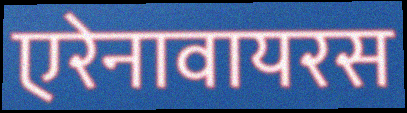
एरेनावायरस